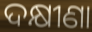
ଦକ୍ଷୀଣା